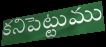
కనిపెట్టుము